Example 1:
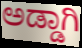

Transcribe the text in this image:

ಅಡ್ಡಾಗಿ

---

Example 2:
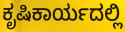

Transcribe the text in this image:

ಕೃಷಿಕಾರ್ಯದಲ್ಲಿ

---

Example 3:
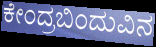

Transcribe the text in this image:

ಕೇಂದ್ರಬಿಂದುವಿನ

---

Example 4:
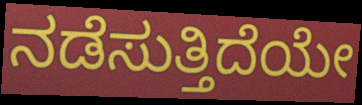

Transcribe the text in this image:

ನಡೆಸುತ್ತಿದೆಯೇ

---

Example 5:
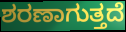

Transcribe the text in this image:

ಶರಣಾಗುತ್ತದೆ